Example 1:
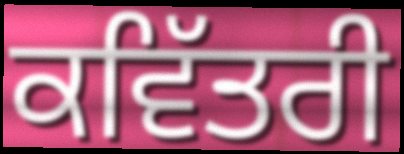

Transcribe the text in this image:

ਕਵਿੱਤਰੀ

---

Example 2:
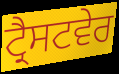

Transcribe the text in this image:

ਟ੍ਰੈਸਟਵੇਰ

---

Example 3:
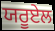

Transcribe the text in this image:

ਯਰੂਏਲ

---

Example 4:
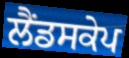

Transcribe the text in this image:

ਲੈਂਡਸਕੇਪ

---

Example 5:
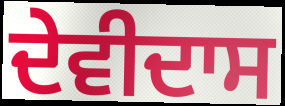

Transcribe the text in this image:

ਦੇਵੀਦਾਸ